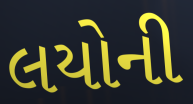
લયોની